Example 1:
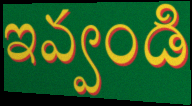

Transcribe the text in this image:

ఇవ్వండి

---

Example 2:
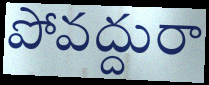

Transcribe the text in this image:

పోవద్దురా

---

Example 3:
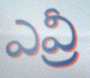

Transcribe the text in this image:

ఎవ్రీ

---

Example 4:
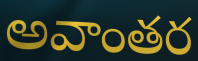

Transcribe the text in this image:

అవాంతర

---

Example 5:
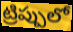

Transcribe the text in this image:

ట్రిప్పులో